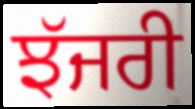
ਝੱਜਰੀ